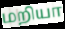
மறியா